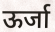
ऊर्जा